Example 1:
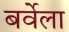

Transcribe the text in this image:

बर्वेला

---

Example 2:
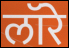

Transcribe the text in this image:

लॉरे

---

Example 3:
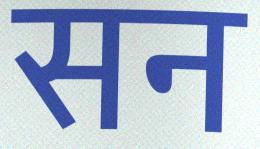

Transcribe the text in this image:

सन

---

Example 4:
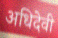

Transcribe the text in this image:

अधिदेवी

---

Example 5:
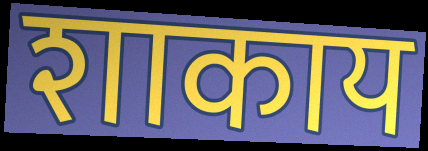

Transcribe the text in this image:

शाकाय